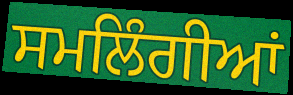
ਸਮਲਿੰਗੀਆਂ